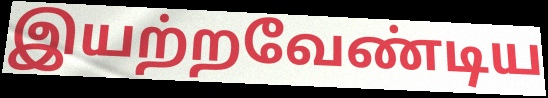
இயற்றவேண்டிய